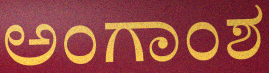
ಅಂಗಾಂಶ